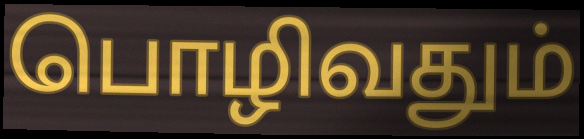
பொழிவதும்